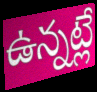
ఉన్నట్లే